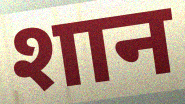
शान